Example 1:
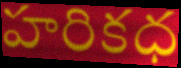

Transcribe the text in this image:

హరికధ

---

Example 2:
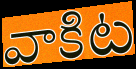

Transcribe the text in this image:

వాకిట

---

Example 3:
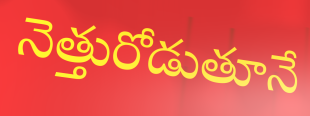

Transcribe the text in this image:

నెత్తురోడుతూనే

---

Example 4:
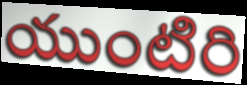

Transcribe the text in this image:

యుంటిరి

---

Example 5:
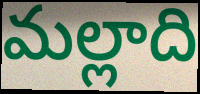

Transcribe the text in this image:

మల్లాది